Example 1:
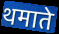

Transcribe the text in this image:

थमाते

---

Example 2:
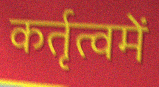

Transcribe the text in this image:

कर्तृत्वमें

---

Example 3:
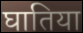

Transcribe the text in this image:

घातिया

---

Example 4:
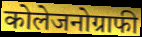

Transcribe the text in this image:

कोलेजनोग्राफी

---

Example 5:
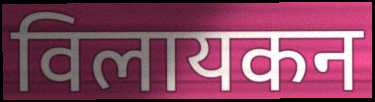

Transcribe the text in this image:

विलायकन